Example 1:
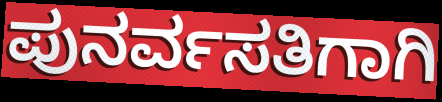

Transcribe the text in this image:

ಪುನರ್ವಸತಿಗಾಗಿ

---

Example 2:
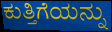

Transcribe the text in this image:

ಕುತ್ತಿಗೆಯನ್ನು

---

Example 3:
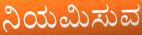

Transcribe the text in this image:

ನಿಯಮಿಸುವ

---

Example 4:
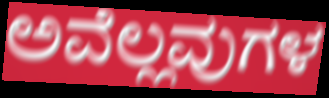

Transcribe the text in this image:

ಅವೆಲ್ಲವುಗಳ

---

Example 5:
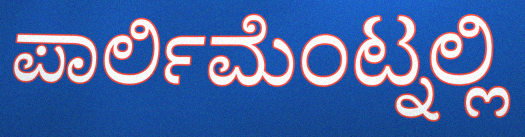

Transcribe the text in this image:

ಪಾರ್ಲಿಮೆಂಟ್ನಲ್ಲಿ